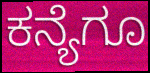
ಕನ್ಯೆಗೂ